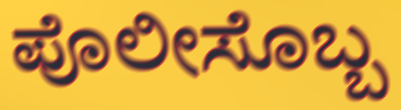
ಪೊಲೀಸೊಬ್ಬ